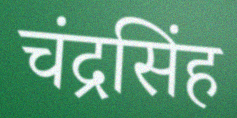
चंद्रसिंह